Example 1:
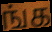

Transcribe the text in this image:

ங்க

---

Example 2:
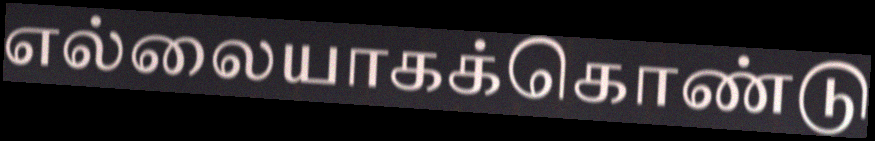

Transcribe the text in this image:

எல்லையாகக்கொண்டு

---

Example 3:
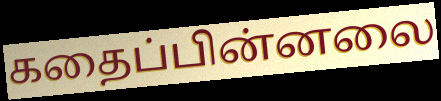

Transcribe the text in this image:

கதைப்பின்னலை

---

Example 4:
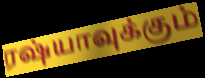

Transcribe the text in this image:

ரஷ்யாவுக்கும்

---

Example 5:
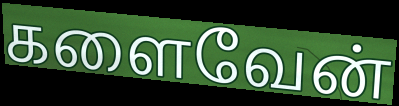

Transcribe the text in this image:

களைவேன்